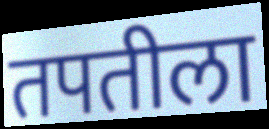
तपतीला